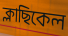
ক্লাছিকেল